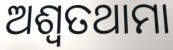
ଅଶ୍ୱତଥାମା